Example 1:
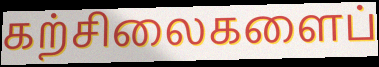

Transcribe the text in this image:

கற்சிலைகளைப்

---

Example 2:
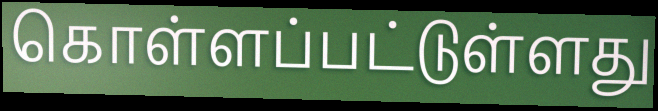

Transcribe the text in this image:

கொள்ளப்பட்டுள்ளது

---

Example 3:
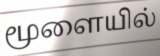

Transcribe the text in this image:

மூளையில்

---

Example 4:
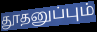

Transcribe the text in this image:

தூதனுப்பும்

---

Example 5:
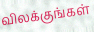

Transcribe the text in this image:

விலக்குங்கள்